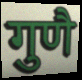
गुणै